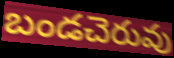
బండచెరువు